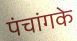
पंचांगके